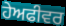
ਹੇਅਫੀਵਰ